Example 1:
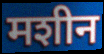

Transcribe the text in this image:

मशीन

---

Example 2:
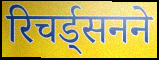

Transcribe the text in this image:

रिचर्ड्सनने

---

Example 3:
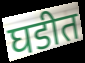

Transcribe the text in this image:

घडीत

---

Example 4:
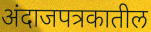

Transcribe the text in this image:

अंदाजपत्रकातील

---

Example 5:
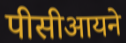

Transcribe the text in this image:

पीसीआयने